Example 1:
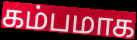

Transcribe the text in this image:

கம்பமாக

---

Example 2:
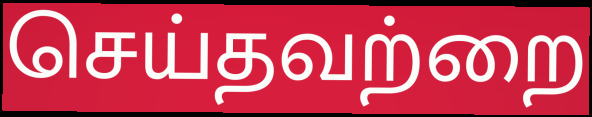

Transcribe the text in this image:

செய்தவற்றை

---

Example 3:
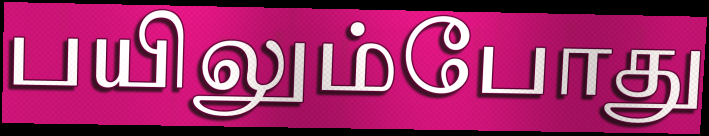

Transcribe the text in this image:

பயிலும்போது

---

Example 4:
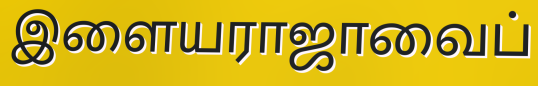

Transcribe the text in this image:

இளையராஜாவைப்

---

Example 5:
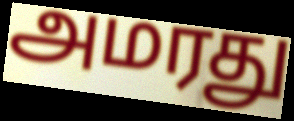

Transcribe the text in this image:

அமரது